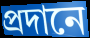
প্রদানে